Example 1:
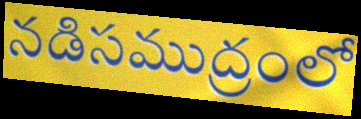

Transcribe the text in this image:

నడిసముద్రంలో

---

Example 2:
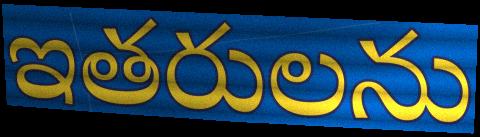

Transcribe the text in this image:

ఇతరులను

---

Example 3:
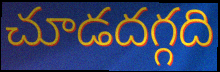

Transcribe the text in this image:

చూడదగ్గది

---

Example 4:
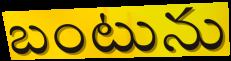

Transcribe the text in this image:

బంటును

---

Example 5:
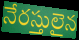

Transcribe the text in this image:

నేరస్తులైన